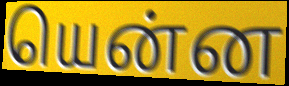
யென்ன